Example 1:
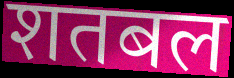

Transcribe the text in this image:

शतबल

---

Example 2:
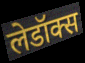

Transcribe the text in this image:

लेडॉक्स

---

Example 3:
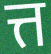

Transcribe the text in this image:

त्त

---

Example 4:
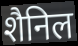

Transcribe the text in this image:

शैनिल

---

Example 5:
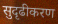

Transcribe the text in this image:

सुदृढीकरण